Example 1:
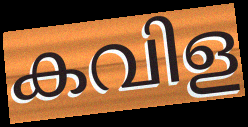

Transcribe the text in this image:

കവിള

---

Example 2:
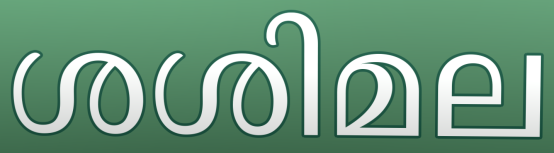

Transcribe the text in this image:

ശശിമല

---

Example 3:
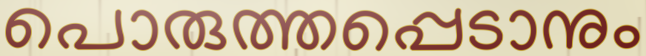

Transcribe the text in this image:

പൊരുത്തപ്പെടാനും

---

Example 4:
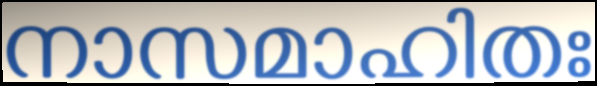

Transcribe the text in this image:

നാസമാഹിതഃ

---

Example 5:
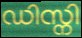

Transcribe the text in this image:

ഡിസ്നി